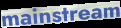
mainstream